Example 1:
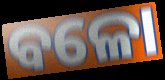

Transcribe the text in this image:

ବଳୋ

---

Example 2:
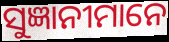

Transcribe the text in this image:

ସୁଜ୍ଞାନୀମାନେ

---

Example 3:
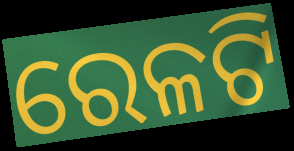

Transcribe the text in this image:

ରେଳଟି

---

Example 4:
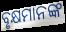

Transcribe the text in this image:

ବୃକ୍ଷମାନଙ୍କ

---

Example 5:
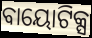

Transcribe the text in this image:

ବାୟୋଟିକ୍ସ